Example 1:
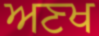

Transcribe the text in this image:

ਅਣਖ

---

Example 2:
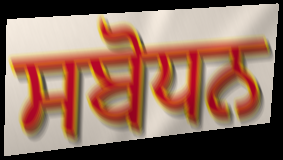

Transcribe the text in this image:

ਸਬੋਧਨ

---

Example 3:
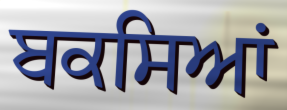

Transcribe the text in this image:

ਬਕਸਿਆਂ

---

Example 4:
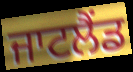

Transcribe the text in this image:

ਜਾਟਲੈਂਡ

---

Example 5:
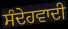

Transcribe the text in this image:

ਸੰਦੇਹਵਾਦੀ